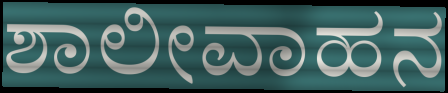
ಶಾಲೀವಾಹನ